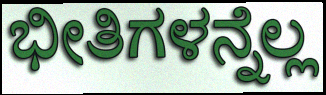
ಭೀತಿಗಳನ್ನೆಲ್ಲ